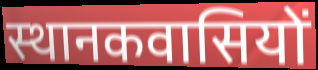
स्थानकवासियों